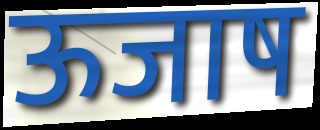
ऊजाष